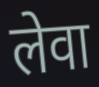
लेवा